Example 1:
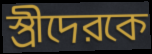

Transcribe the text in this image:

স্ত্রীদেরকে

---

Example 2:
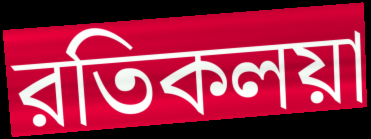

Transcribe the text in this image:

রতিকলয়া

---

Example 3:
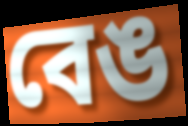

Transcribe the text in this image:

বেঙ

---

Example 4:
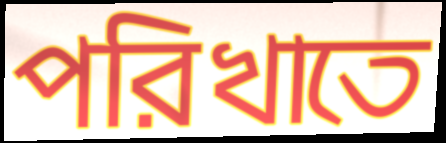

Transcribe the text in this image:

পরিখাতে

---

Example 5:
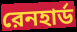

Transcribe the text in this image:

রেনহার্ড